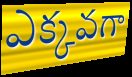
ఎక్కవగా